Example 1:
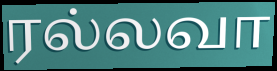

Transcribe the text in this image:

ரல்லவா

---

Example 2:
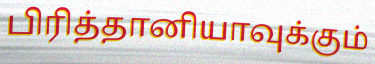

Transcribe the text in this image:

பிரித்தானியாவுக்கும்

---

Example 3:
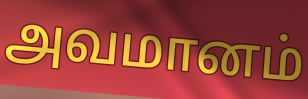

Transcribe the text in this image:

அவமானம்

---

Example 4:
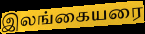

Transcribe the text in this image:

இலங்கையரை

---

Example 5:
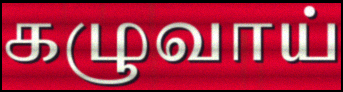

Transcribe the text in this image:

கழுவாய்